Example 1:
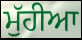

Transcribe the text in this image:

ਮੁੱਹੀਆ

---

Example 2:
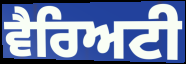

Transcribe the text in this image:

ਵੈਰਿਅਟੀ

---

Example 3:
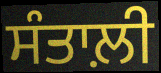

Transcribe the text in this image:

ਸੰਤਾਲ਼ੀ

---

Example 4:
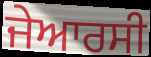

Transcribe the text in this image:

ਜੇਆਰਸੀ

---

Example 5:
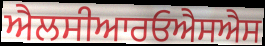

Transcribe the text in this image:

ਐਲਸੀਆਰਓਐਸਐਸ